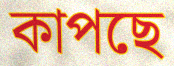
কাপছে